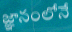
జ్ఞానంలోనే